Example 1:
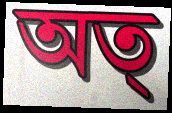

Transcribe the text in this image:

অত্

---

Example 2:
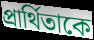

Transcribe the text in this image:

প্রার্থিতাকে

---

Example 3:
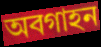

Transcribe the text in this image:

অবগাহন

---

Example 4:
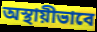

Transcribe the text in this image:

অস্থায়ীভাবে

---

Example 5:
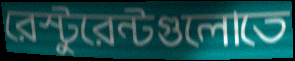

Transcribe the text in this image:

রেস্টুরেন্টগুলোতে